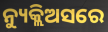
ନ୍ୟୁକ୍ଲିଅସରେ